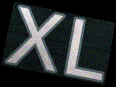
XL